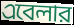
এবেলার